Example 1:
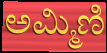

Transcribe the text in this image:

ಅಮ್ಮಿಣಿ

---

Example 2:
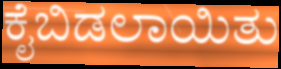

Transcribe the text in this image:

ಕೈಬಿಡಲಾಯಿತು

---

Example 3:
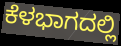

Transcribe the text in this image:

ಕೆಳಭಾಗದಲ್ಲಿ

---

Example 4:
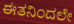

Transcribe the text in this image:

ಈತನಿಂದಲೇ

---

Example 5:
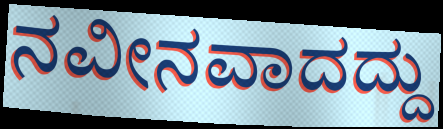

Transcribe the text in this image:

ನವೀನವಾದದ್ದು